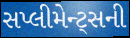
સપ્લીમેન્ટ્સની